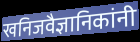
खनिजवैज्ञानिकांनी